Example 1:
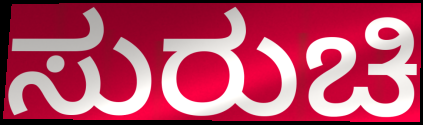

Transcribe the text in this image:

ಸುರುಚಿ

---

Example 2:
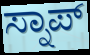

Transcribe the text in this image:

ಸ್ನಾಪ್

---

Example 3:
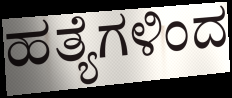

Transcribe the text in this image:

ಹತ್ಯೆಗಳಿಂದ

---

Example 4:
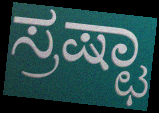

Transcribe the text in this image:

ಸ್ರಷ್ಟಾ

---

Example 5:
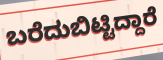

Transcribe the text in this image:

ಬರೆದುಬಿಟ್ಟಿದ್ದಾರೆ